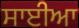
ਸਾਈਆ